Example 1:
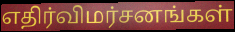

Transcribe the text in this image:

எதிர்விமர்சனங்கள்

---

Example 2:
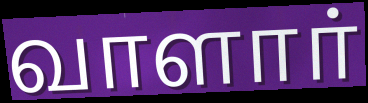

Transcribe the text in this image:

வாளார்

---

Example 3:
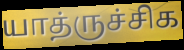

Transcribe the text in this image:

யாத்ருச்சிக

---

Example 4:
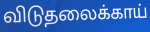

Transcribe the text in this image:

விடுதலைக்காய்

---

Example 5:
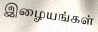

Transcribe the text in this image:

இழையங்கள்